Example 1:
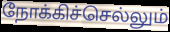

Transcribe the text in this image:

நோக்கிச்செல்லும்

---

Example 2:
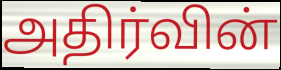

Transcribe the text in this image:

அதிர்வின்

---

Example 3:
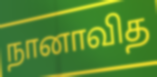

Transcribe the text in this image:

நானாவித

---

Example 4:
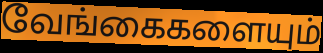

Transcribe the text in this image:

வேங்கைகளையும்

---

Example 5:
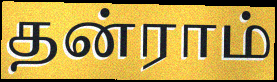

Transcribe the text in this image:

தன்ராம்